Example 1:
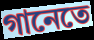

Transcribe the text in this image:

গানেতে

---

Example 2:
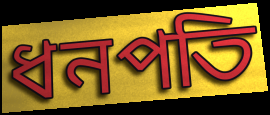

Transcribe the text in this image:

ধনপতি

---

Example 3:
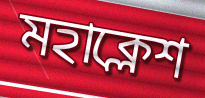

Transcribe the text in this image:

মহাক্লেশ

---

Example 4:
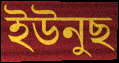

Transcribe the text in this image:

ইউনুছ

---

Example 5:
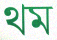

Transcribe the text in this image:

থম